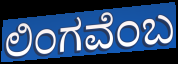
ಲಿಂಗವೆಂಬ